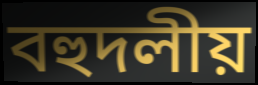
বহুদলীয়